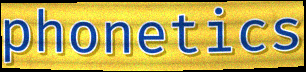
phonetics